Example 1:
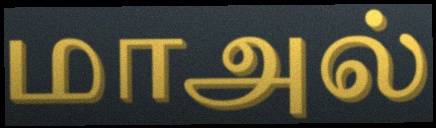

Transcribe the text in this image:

மாஅல்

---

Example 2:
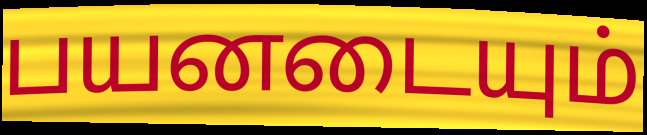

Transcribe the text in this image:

பயனடையும்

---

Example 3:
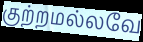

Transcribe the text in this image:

குற்றமல்லவே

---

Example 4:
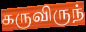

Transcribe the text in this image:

கருவிருந்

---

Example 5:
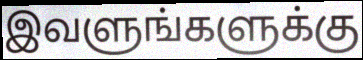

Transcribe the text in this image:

இவளுங்களுக்கு